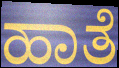
ಹಾತೆ